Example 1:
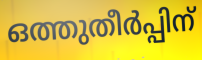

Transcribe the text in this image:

ഒത്തുതീർപ്പിന്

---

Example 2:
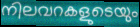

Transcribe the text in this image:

നിലവറകളുടെയും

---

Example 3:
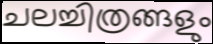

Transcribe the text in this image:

ചലച്ചിത്രങ്ങളും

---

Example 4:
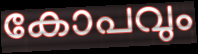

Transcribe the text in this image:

കോപവും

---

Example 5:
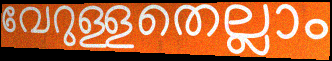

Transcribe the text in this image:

വേറുള്ളതെല്ലാം